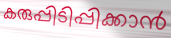
കരുപ്പിടിപ്പിക്കാൻ